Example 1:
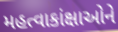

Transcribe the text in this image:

મહત્વાકાંક્ષાઓને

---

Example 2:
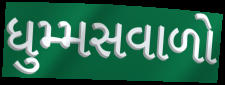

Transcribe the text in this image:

ધુમ્મસવાળો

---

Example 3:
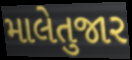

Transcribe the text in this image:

માલેતુજાર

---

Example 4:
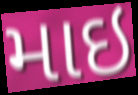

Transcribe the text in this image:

માઇ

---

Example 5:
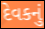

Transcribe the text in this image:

દેવકનું